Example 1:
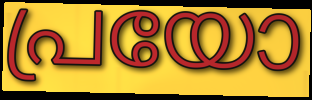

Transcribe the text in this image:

പ്രയോ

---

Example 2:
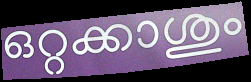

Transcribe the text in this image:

ഒറ്റക്കാശും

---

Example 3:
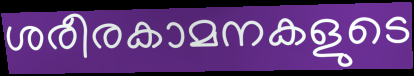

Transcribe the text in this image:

ശരീരകാമനകളുടെ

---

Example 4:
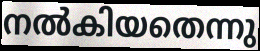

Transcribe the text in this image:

നൽകിയതെന്നു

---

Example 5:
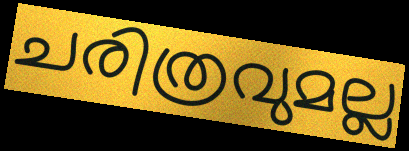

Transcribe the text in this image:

ചരിത്രവുമല്ല